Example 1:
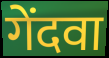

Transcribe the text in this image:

गेंदवा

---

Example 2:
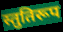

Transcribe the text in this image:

स्तुतिरूप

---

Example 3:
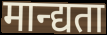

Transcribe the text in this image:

मान्द्यता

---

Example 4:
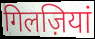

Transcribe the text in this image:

गिलज़ियां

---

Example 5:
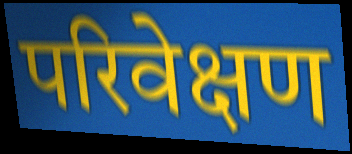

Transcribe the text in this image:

परिवेक्षण